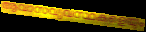
ആവാസവ്യവസ്ഥകളെയും